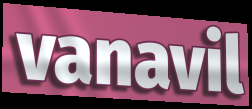
vanavil